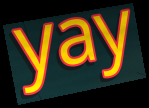
yay